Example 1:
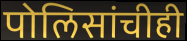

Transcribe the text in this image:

पोलिसांचीही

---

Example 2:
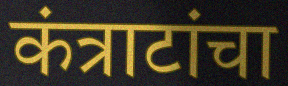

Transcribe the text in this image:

कंत्राटांचा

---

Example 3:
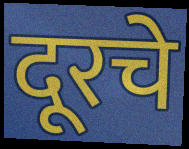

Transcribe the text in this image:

दूरचे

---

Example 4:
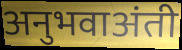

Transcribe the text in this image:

अनुभवाअंती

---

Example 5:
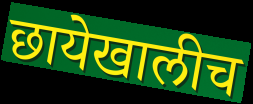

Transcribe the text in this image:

छायेखालीच